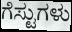
ಗೆಸ್ಟುಗಳು